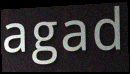
agad